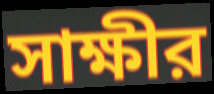
সাক্ষীর